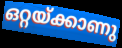
ഒറ്റയ്ക്കാണു